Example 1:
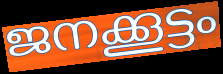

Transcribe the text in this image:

ജനക്കൂട്ടം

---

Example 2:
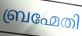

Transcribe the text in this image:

ബ്രഹ്മേതി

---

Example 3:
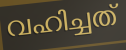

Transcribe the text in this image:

വഹിച്ചത്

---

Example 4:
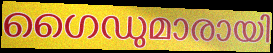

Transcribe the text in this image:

ഗൈഡുമാരായി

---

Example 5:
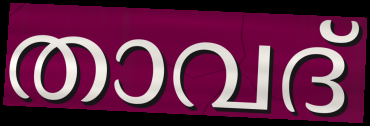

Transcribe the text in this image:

താവദ്